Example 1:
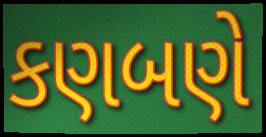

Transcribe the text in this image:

કણબણે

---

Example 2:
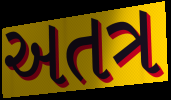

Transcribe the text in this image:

અતત્ર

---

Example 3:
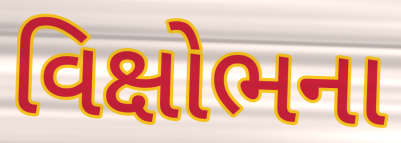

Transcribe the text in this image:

વિક્ષોભના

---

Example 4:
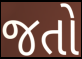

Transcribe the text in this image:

જતો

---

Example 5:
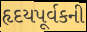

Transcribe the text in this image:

હૃદયપૂર્વકની